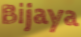
Bijaya